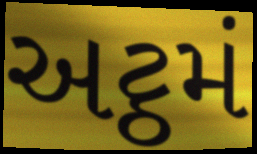
અટ્ઠમં